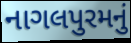
નાગલપુરમનું